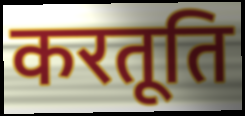
करतूति